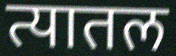
त्यातल